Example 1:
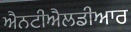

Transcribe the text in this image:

ਐਨਟੀਐਲਡੀਆਰ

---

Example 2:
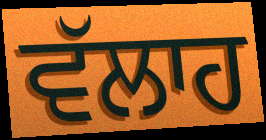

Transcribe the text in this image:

ਵੱਲਾਹ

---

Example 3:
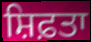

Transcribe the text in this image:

ਸ਼ਿਫ਼ਤਾ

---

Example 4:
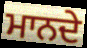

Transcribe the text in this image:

ਮਾਨਦੇ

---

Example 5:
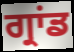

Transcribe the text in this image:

ਗ੍ਰਾਂਡ